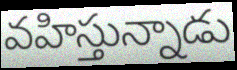
వహిస్తున్నాడు